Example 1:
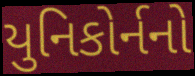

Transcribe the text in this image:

યુનિકોર્નનો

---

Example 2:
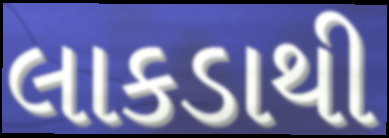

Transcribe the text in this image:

લાકડાથી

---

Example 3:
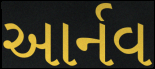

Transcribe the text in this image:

આર્નવ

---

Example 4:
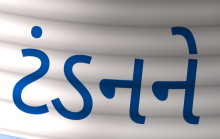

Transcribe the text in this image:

ટંડનને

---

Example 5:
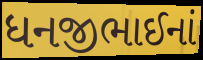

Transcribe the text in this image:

ધનજીભાઈનાં